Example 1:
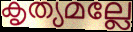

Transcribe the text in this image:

കൃത്യമല്ലേ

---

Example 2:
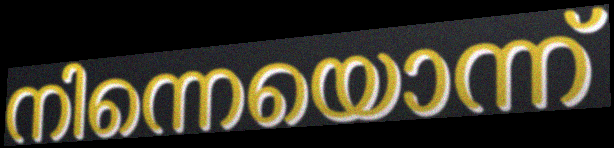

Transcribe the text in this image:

നിന്നെയൊന്ന്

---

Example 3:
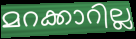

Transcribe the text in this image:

മറക്കാറില്ല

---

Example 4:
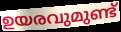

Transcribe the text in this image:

ഉയരവുമുണ്ട്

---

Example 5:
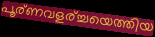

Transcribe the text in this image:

പൂര്ണവളര്ച്ചയെത്തിയ